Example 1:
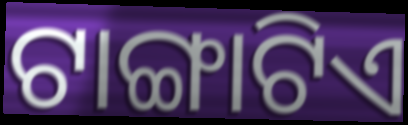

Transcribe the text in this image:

ଟାଙ୍ଗାଟିଏ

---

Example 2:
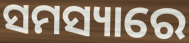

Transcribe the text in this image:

ସମସ୍ୟାରେ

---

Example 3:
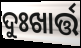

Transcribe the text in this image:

ଦୁଃଖାର୍ତ୍ତ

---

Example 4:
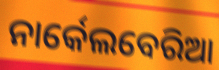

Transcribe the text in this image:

ନାର୍କେଲବେରିଆ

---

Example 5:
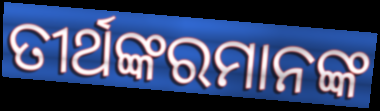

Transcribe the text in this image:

ତୀର୍ଥଙ୍କରମାନଙ୍କ